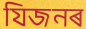
যিজনৰ